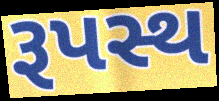
રૂપસ્થ